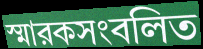
স্মারকসংবলিত